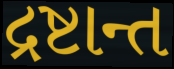
દ્રષ્ટાન્ત